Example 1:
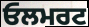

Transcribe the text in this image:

ਓਲਮਰਟ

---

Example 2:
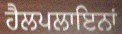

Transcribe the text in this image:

ਹੈਲਪਲਾਇਨਾਂ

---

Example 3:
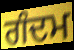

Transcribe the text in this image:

ਗੰਦਮ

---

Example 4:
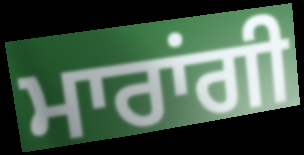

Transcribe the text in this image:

ਮਾਰਾਂਗੀ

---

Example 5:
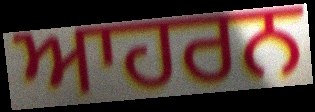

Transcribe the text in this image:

ਆਹਰਨ